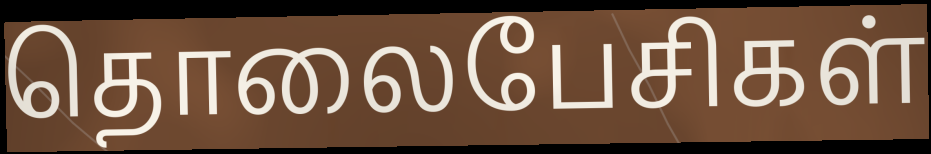
தொலைபேசிகள்